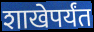
शाखेपर्यंत